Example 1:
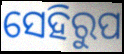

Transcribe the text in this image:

ସେହିରୁପ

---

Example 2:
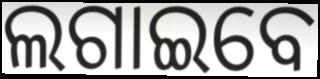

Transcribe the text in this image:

ଲଗାଇବେ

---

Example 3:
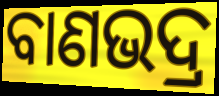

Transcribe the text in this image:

ବାଣଭଦ୍ର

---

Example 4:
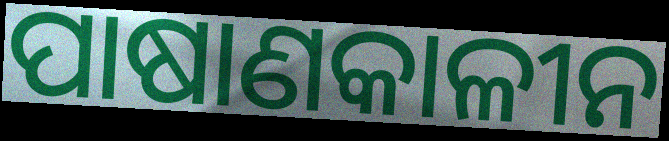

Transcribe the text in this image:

ପାଷାଣକାଳୀନ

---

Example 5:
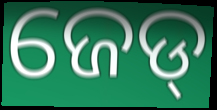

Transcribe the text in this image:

ଜେଡ୍